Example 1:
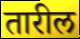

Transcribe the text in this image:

तारील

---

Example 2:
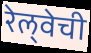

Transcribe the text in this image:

रेल्वेची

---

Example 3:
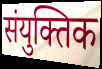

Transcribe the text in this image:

संयुक्तिक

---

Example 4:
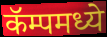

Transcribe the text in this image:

कॅम्पमध्ये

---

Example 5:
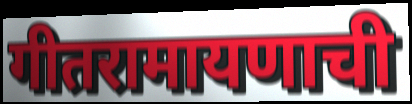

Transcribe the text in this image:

गीतरामायणाची